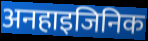
अनहाइजिनिक